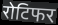
रोटिफर